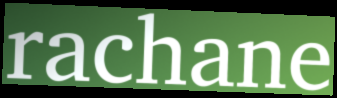
rachane